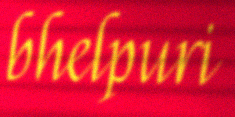
bhelpuri